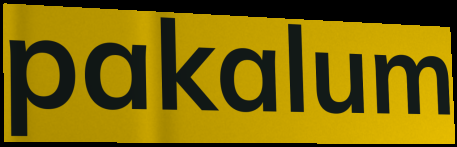
pakalum